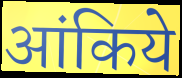
आंकिये